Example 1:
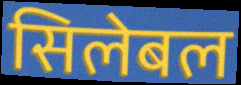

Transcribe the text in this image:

सिलेबल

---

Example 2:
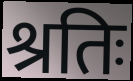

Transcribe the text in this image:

श्रतिः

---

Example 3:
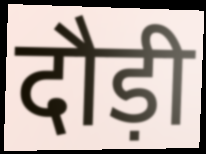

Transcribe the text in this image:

दौड़ी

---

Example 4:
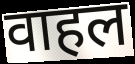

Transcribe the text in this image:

वाहल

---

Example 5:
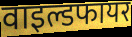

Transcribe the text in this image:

वाइल्डफायर